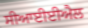
ਸੀਆਈਈਐਲ